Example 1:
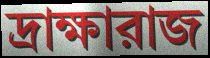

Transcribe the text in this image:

দ্রাক্ষারাজ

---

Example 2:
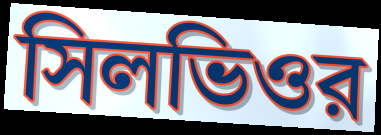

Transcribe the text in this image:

সিলভিওর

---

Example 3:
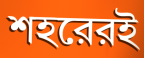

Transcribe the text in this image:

শহরেরই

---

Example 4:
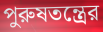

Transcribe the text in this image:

পুরুষতন্ত্রের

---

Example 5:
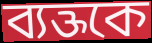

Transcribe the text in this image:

ব্যক্তকে